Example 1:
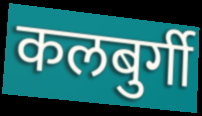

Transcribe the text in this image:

कलबुर्गी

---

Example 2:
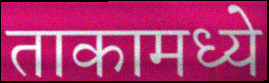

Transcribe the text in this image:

ताकामध्ये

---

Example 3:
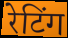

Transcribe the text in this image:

रेटिंग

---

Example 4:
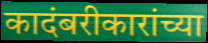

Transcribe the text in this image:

कादंबरीकारांच्या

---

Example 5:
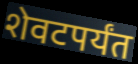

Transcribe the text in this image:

शेवटपर्यंत